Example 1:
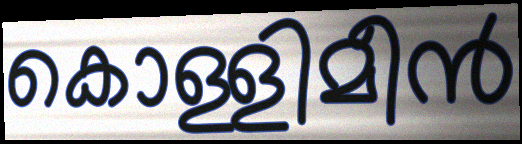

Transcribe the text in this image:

കൊള്ളിമീൻ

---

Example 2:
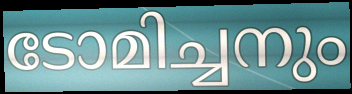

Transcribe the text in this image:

ടോമിച്ചനും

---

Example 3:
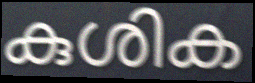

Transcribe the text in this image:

കുശിക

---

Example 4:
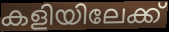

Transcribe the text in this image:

കളിയിലേക്ക്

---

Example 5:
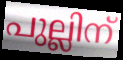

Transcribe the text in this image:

പുല്ലിന്